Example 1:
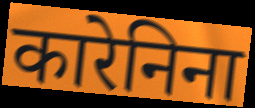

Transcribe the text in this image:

कारेनिना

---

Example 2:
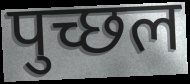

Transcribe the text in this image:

पुच्छल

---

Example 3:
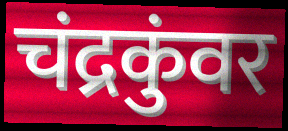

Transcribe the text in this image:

चंद्रकुंवर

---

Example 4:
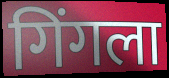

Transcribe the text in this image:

गिंगला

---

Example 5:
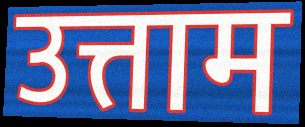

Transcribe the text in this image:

उत्ताम